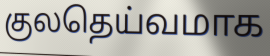
குலதெய்வமாக